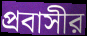
প্রবাসীর